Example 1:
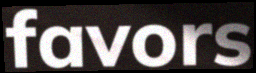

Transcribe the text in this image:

favors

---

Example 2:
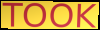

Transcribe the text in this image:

TOOK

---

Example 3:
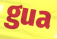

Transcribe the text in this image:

gua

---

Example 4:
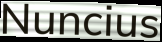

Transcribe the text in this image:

Nuncius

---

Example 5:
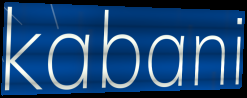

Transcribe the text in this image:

kabani